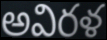
అవిరళ